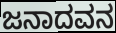
ಜನಾದವನ